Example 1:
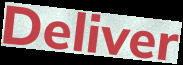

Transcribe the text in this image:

Deliver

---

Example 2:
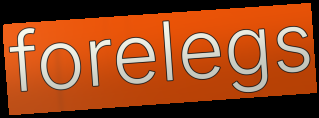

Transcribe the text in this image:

forelegs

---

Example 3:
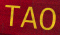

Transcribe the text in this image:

TAO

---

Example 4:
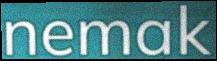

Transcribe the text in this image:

nemak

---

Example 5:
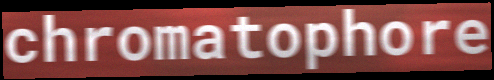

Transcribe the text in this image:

chromatophore